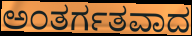
ಅಂತರ್ಗತವಾದ